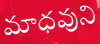
మాధవుని